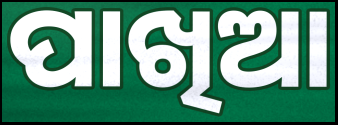
ପାଖିଆ